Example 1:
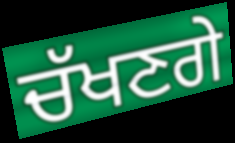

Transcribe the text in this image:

ਚੱਖਣਗੇ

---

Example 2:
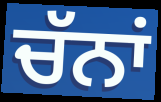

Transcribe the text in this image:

ਚੱਨਾਂ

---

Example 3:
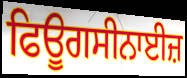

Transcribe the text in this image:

ਫਿਊਗਸੀਨਾਈਜ਼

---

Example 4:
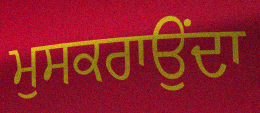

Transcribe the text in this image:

ਮੁਸਕਰਾਉਂਦਾ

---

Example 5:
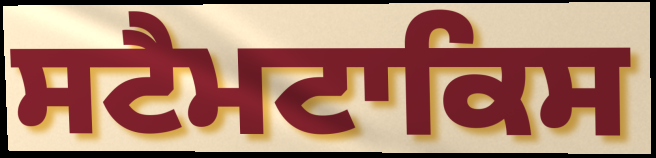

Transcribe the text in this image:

ਸਟੈਮਟਾਕਿਸ